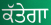
ਕੱਤੇਗਾ